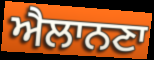
ਐਲਾਨਣਾ